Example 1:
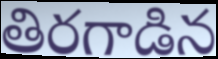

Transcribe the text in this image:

తిరగాడిన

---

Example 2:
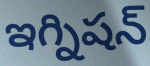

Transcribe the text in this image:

ఇగ్నిషన్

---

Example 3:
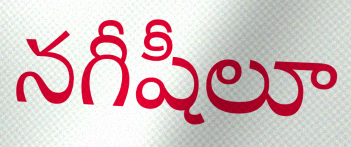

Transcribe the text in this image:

నగీషీలూ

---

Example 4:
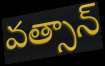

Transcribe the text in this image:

వత్సాన్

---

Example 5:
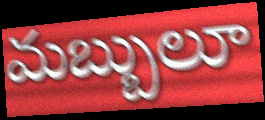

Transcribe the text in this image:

మబ్బులూ